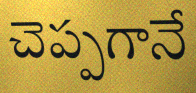
చెప్పగానే